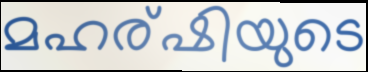
മഹര്ഷിയുടെ